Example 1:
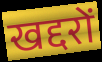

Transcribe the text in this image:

खद्दरों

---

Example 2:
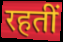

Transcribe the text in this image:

रहतीं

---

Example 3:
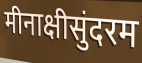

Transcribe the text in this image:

मीनाक्षीसुंदरम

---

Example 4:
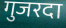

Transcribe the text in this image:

गुजरदा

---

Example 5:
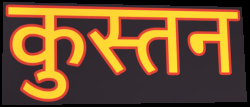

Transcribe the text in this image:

कुस्तन